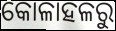
କୋଳାହଳରୁ